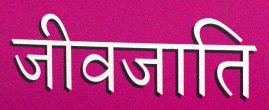
जीवजाति